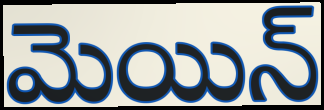
మెయిన్